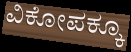
ವಿಕೋಪಕ್ಕೂ